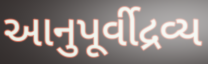
આનુપૂર્વીદ્રવ્ય